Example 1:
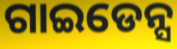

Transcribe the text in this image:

ଗାଇଡେନ୍ସ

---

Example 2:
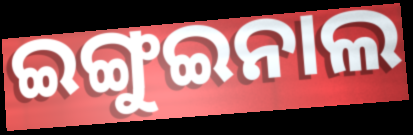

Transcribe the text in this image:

ଇଙ୍ଗୁଇନାଲ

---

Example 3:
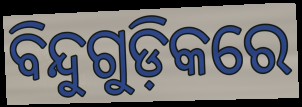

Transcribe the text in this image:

ବିନ୍ଦୁଗୁଡ଼ିକରେ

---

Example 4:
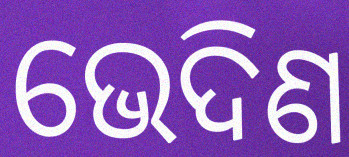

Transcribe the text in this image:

ଭେଦିଣ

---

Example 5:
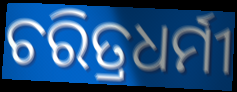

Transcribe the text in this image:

ଚରିତ୍ରଧର୍ମୀ